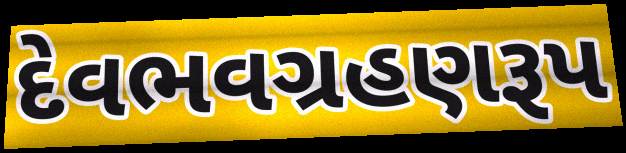
દેવભવગ્રહણરૂપ